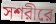
সশরীরে